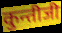
कुन्तीजी